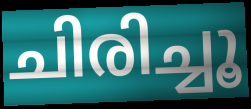
ചിരിച്ചൂ